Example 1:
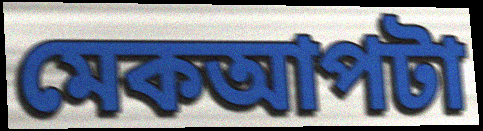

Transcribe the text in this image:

মেকআপটা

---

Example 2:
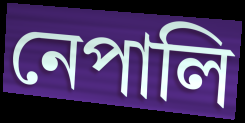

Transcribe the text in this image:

নেপালি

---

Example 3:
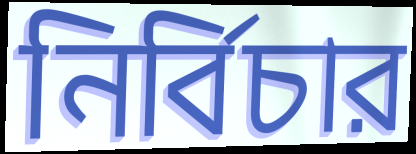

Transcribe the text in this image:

নির্বিচার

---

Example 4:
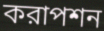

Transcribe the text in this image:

করাপশন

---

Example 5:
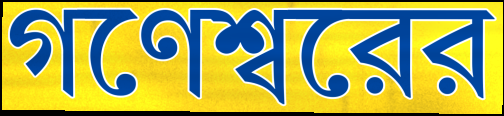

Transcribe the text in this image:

গণেশ্বরের